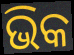
ଭିକ